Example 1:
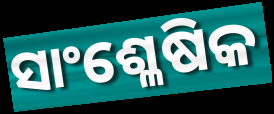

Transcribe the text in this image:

ସାଂଶ୍ଳେଷିକ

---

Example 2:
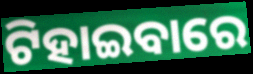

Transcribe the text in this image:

ଟିହାଇବାରେ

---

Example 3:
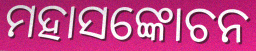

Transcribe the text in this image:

ମହାସଙ୍କୋଚନ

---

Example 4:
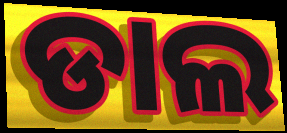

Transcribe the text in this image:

ଡାଲ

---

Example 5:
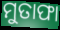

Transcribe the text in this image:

ମୁତାଫା